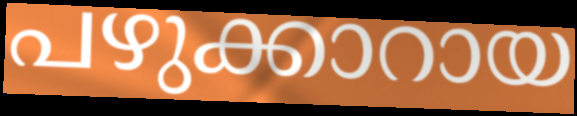
പഴുക്കാറായ